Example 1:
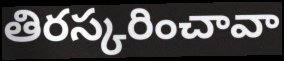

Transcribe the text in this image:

తిరస్కరించావా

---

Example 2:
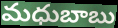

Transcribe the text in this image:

మధుబాబు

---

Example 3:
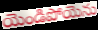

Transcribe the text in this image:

యెండిపోయెను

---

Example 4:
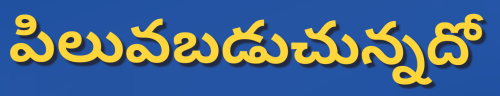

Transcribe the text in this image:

పిలువబడుచున్నదో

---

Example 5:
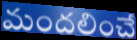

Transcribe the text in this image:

మందలించే